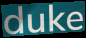
duke